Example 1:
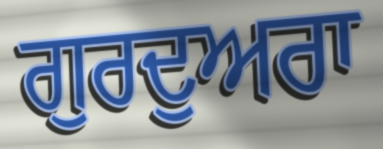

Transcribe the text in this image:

ਗੁਰਦੁਅਰਾ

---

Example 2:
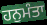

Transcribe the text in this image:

ਹਨੁਮੰਤਾ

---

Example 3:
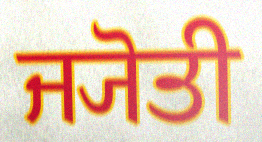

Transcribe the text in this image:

ਜ੍ਯੋਤੀ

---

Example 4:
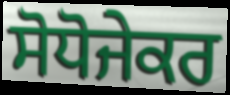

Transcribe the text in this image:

ਸੋਧੋਜੇਕਰ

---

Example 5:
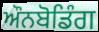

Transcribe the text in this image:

ਔਨਬੋਡਿੰਗ